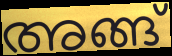
അങ്ങ്